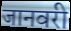
जानवरी